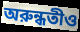
অরুন্ধতীও